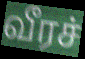
வீரச்